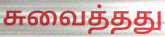
சுவைத்தது